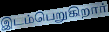
இடம்பெறுகிறார்